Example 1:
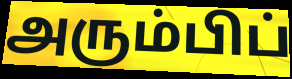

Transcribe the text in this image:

அரும்பிப்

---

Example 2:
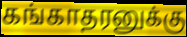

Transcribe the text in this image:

கங்காதரனுக்கு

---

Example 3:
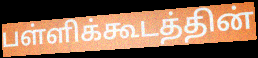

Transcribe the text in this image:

பள்ளிக்கூடத்தின்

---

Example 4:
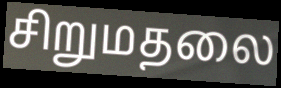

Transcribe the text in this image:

சிறுமதலை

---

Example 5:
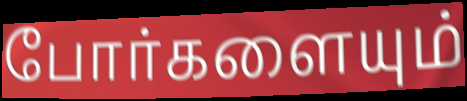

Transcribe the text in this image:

போர்களையும்